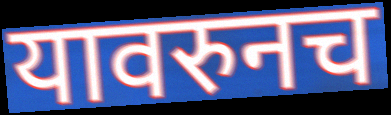
यावरुनच